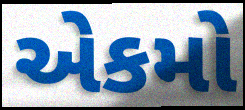
એકમો